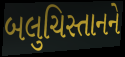
બલુચિસ્તાનને